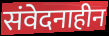
संवेदनाहीन